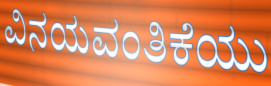
ವಿನಯವಂತಿಕೆಯು